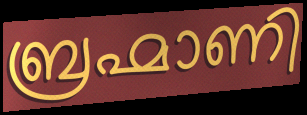
ബ്രഹ്മാണി